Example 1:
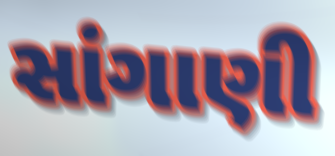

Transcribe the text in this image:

સાંગાણી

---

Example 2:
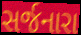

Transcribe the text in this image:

સર્જનારા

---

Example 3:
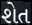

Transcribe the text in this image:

શેત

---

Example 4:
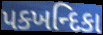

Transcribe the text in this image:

પક્ખન્દિકા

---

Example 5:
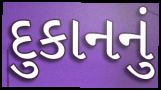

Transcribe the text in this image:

દુકાનનું